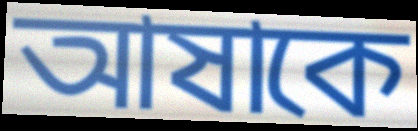
আষাকে